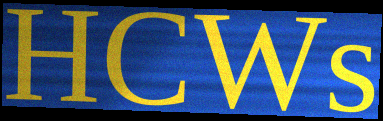
HCWs